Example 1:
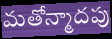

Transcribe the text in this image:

మతోన్మాదపు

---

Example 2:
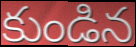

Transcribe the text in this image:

కుండిన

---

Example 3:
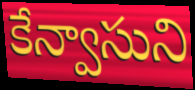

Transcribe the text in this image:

కేన్వాసుని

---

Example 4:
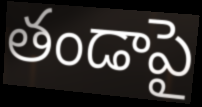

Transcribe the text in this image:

తండాపై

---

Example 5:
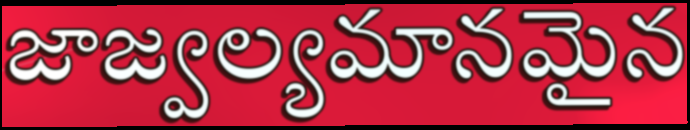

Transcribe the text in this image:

జాజ్వల్యమానమైన